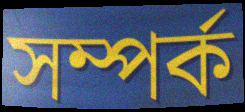
সম্পৰ্ক